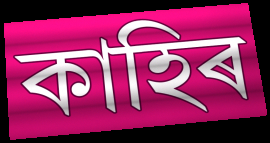
কাহিৰ